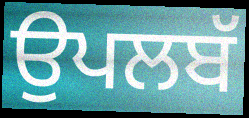
ਉਪਲਬੱ